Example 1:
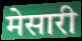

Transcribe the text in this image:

मेसारी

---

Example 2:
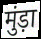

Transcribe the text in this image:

मुंड़ा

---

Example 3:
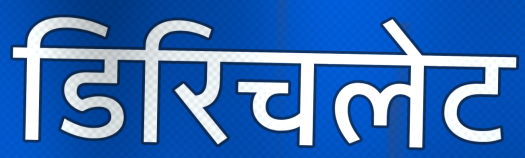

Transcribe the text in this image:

डिरिचलेट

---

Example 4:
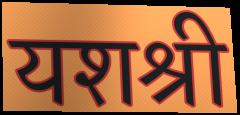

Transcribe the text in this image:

यशश्री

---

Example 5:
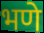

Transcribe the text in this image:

भणे